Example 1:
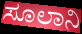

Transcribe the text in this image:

ಸೂಲಾನಿ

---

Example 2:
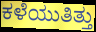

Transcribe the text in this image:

ಕಳೆಯುತಿತ್ತು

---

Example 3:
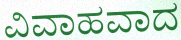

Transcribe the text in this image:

ವಿವಾಹವಾದ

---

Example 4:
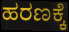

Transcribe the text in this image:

ಹರಣಕ್ಕೆ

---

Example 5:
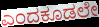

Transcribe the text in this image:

ಎಂದಕೂಡಲೇ